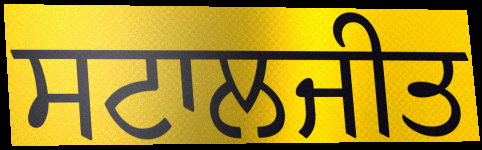
ਸਟਾਲਜੀਤ